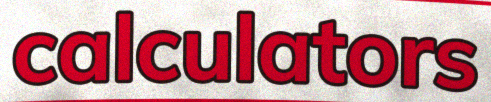
calculators